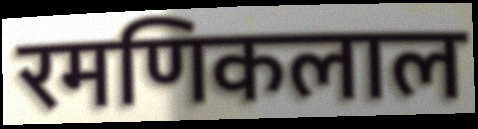
रमणिकलाल